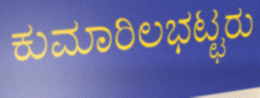
ಕುಮಾರಿಲಭಟ್ಟರು